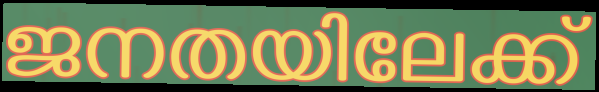
ജനതയിലേക്ക്